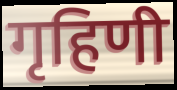
गृहिणी